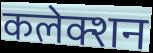
कलेक्शन